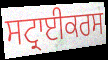
ਸਟ੍ਰਾਈਕਰਸ